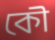
কৌ